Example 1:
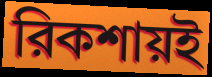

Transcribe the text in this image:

রিকশায়ই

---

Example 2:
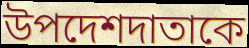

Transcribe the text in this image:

উপদেশদাতাকে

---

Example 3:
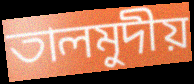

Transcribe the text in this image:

তালমুদীয়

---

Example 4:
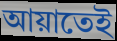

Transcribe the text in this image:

আয়াতেই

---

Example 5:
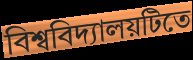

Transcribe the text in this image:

বিশ্ববিদ্যালয়টিতে